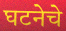
घटनेचे